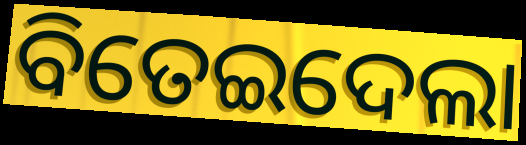
ବିତେଇଦେଲା